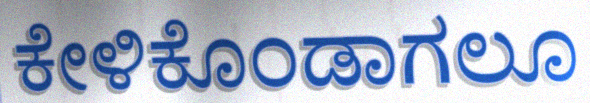
ಕೇಳಿಕೊಂಡಾಗಲೂ